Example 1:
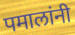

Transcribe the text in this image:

पमालांनी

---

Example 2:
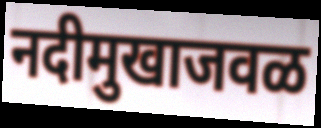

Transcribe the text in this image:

नदीमुखाजवळ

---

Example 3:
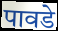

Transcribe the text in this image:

पावडे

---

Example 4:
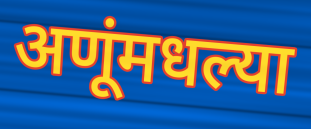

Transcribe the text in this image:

अणूंमधल्या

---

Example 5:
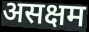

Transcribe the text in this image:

असक्षम